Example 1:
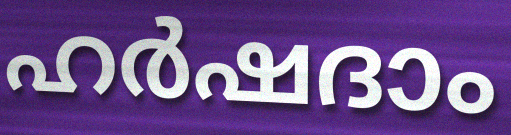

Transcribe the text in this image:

ഹർഷദാം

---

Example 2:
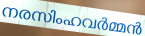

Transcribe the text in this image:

നരസിംഹവർമ്മൻ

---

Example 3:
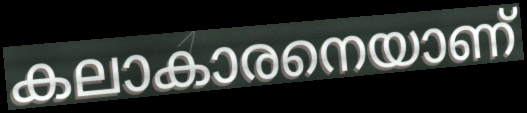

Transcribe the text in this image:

കലാകാരനെയാണ്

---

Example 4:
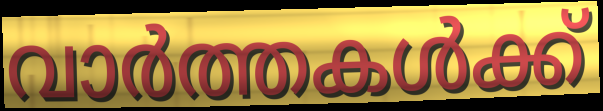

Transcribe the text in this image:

വാർത്തകൾക്ക്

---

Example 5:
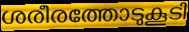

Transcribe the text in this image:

ശരീരത്തോടുകൂടി